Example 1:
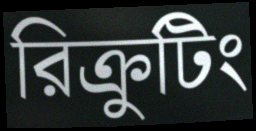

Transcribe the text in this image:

রিক্রুটিং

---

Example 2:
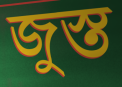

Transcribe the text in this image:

জুস্ত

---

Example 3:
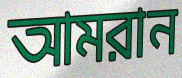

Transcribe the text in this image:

আমরান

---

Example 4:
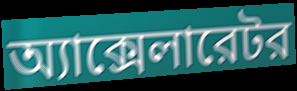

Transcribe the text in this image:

অ্যাক্সেলারেটর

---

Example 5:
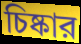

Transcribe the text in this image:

চিষ্কার